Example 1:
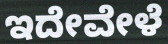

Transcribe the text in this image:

ಇದೇವೇಳೆ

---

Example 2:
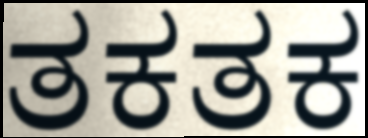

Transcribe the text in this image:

ತಕತಕ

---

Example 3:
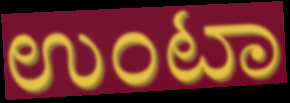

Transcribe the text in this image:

ಉಂಟಾ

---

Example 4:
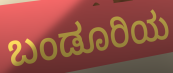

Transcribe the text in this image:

ಬಂಡೂರಿಯ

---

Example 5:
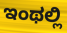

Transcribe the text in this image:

ಇಂಥಲ್ಲಿ